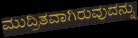
ಮುದ್ರಿತವಾಗಿರುವುದನ್ನು